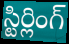
స్టిర్లింగ్